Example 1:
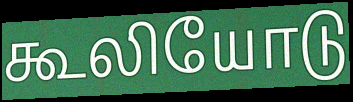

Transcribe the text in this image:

கூலியோடு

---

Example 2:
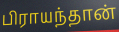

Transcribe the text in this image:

பிராயந்தான்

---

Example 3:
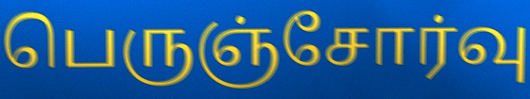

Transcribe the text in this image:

பெருஞ்சோர்வு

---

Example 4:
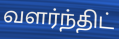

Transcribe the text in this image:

வளர்ந்திட்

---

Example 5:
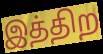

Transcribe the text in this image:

இத்திற